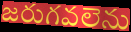
జరుగవలెను